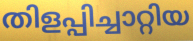
തിളപ്പിച്ചാറ്റിയ